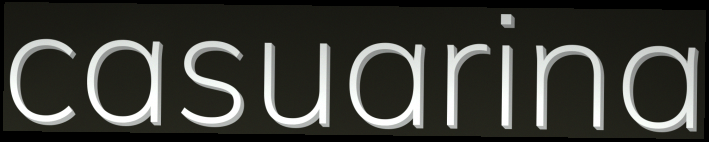
casuarina